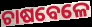
ଚାଷବେଳେ